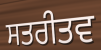
ਸਤਰੀਤਵ